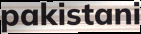
pakistani